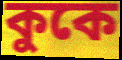
কুকে